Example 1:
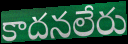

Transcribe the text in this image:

కాదనలేరు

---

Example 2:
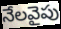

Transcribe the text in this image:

నేలవైపు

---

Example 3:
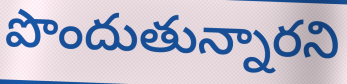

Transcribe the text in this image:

పొందుతున్నారని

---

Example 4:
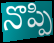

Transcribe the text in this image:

నొప్పి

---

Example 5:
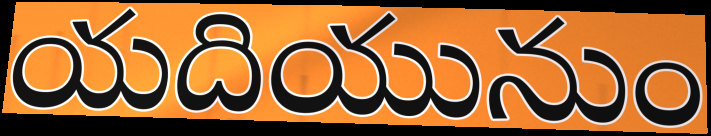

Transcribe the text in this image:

యదియునుం